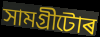
সামগ্ৰীটোৰ